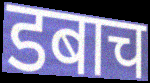
डबाच